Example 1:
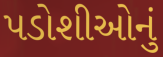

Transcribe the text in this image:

પડોશીઓનું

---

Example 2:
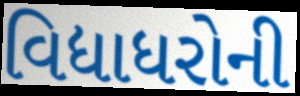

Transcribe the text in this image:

વિદ્યાધરોની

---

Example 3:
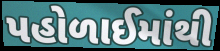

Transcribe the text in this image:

પહોળાઈમાંથી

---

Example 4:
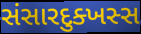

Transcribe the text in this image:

સંસારદુક્ખસ્સ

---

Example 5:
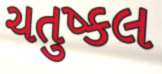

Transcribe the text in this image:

ચતુષ્કલ